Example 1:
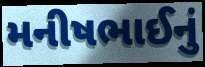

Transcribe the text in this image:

મનીષભાઈનું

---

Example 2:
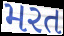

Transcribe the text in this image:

મરત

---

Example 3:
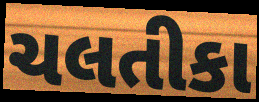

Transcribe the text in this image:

ચલતીકા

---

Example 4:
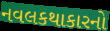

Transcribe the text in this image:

નવલકથાકારનો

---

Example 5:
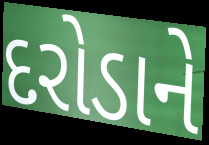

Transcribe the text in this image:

દરોડાને